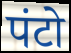
पंटो